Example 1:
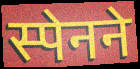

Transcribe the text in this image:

स्पेनने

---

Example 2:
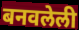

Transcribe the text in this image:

बनवलेली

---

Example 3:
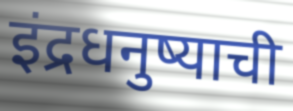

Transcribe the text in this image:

इंद्रधनुष्याची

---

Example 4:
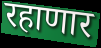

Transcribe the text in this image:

रहाणार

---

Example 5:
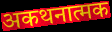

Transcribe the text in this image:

अकथनात्मक